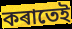
কৰাতেই